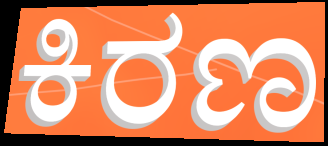
ಕಿರಣ